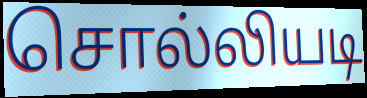
சொல்லியடி